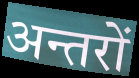
अन्तरों